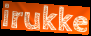
irukke